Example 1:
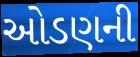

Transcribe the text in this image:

ઓડણની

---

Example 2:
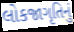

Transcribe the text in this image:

લોકજાગૃતિનું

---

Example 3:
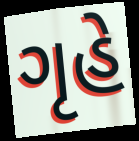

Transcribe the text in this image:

ગૃહે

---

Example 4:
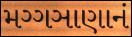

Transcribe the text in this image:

મગ્ગઞાણાનં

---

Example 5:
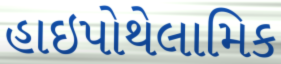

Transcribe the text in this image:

હાઇપોથેલામિક